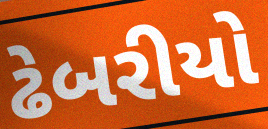
ઢેબરીયો